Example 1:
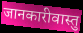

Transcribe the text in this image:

जानकारीवास्तु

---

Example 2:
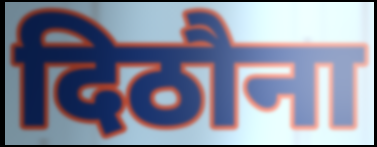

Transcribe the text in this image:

दिठौना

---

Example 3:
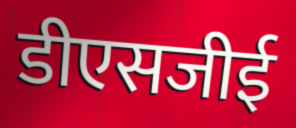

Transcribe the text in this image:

डीएसजीई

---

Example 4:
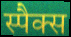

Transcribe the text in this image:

स्पैक्स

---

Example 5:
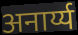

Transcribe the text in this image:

अनार्य्य